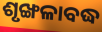
ଶୃଙ୍ଖଳାବଦ୍ଧ